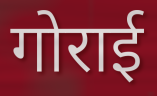
गोराई